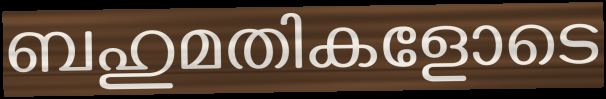
ബഹുമതികളോടെ